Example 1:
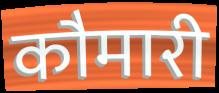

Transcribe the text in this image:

कौमारी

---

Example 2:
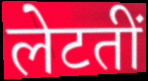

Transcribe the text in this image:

लेटतीं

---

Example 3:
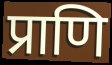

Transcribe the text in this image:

प्राणि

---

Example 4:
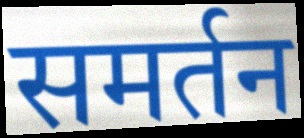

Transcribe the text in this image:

समर्तन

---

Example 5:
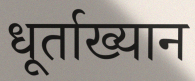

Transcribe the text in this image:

धूर्ताख्यान